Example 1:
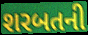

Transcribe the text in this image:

શરબતની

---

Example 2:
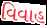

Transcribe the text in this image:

વિવાહ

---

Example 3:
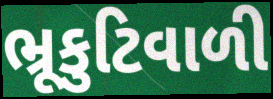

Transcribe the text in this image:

ભ્રૂકુટિવાળી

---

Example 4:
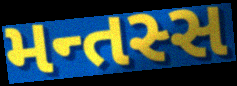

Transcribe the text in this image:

મન્તસ્સ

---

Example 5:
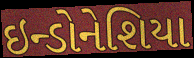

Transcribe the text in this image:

ઇન્ડોનેશિયા